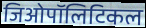
जिओपॉलिटिकल